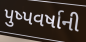
પુષ્પવર્ષાની